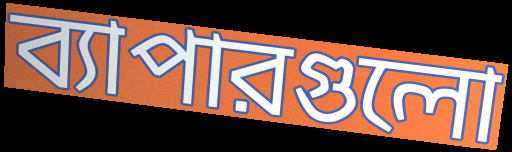
ব্যাপারগুলো